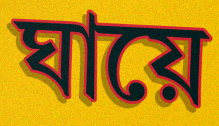
ঘায়ে